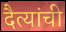
दैत्यांची